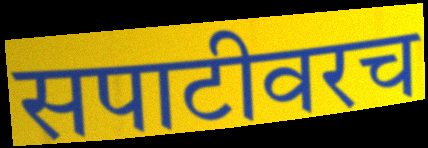
सपाटीवरच